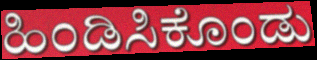
ಹಿಂಡಿಸಿಕೊಂಡು